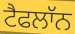
ਟੈਫਲਾੱਨ